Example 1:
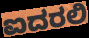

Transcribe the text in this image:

ಐದರಲಿ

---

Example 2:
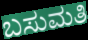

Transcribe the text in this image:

ಬಸುಮತಿ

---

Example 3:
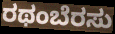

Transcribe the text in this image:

ರಥಂಬೆರಸು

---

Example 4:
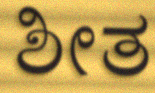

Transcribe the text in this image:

ಶೀತ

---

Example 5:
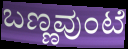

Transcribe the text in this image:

ಬಣ್ಣವುಂಟೆ